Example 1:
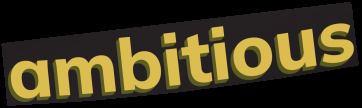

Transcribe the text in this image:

ambitious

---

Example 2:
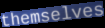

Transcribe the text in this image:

themselves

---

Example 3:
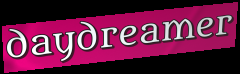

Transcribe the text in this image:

daydreamer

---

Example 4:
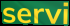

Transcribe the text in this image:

servi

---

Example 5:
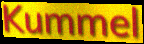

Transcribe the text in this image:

Kummel